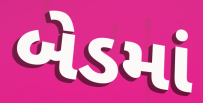
બેડમાં